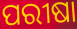
ପରୀଷା